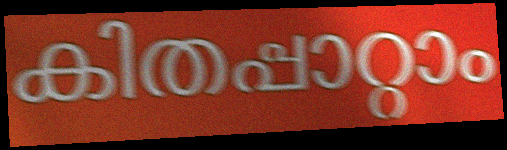
കിതപ്പാറ്റാം